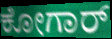
ಕೋಗಾರ್